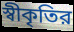
স্বীকৃতির